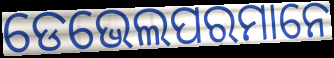
ଡେଭେଲପରମାନେ